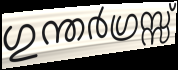
ഗുന്തർഗ്രസ്സ്